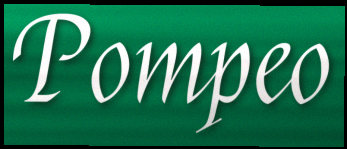
Pompeo